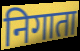
निगाता